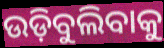
ଉଡ଼ିବୁଲିବାକୁ